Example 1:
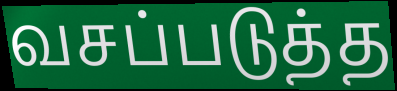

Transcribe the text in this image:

வசப்படுத்த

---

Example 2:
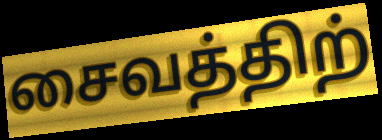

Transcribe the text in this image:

சைவத்திற்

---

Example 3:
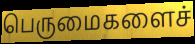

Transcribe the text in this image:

பெருமைகளைச்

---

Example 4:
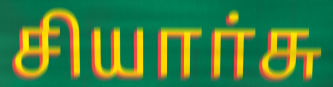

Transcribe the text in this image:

சியார்சு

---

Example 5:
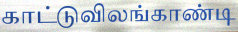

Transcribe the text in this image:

காட்டுவிலங்காண்டி